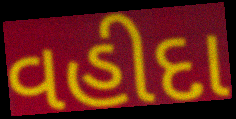
વહીદા